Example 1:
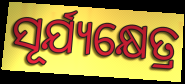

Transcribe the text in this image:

ସୂର୍ଯ୍ୟକ୍ଷେତ୍ର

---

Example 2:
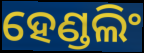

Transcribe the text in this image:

ହେଣ୍ଡଲିଂ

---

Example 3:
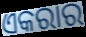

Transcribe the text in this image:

ଏକରାର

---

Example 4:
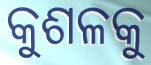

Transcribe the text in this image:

କୁଶଳକୁ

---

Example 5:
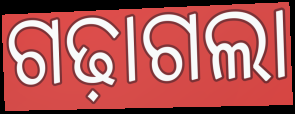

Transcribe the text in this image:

ଗଢ଼ାଗଲା